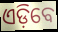
ଏଡ଼ିବେ